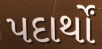
પદાર્થોં